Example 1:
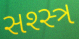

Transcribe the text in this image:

સશ્સ્ત્ર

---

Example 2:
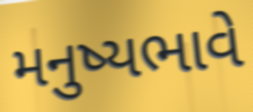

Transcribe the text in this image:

મનુષ્યભાવે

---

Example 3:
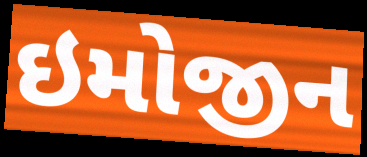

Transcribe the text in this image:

ઇમોજીન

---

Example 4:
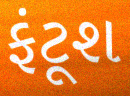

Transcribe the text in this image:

ફંટૂશ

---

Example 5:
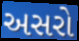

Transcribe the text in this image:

અસરો